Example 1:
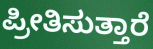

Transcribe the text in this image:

ಪ್ರೀತಿಸುತ್ತಾರೆ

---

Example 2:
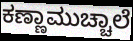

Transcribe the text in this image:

ಕಣ್ಣಾಮುಚ್ಚಾಲೆ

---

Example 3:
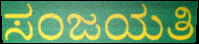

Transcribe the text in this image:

ಸಂಜಯತಿ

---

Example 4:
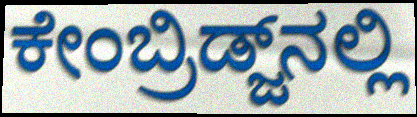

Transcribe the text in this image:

ಕೇಂಬ್ರಿಡ್ಜ್‌ನಲ್ಲಿ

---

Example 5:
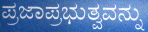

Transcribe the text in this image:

ಪ್ರಜಾಪ್ರಭುತ್ವವನ್ನು